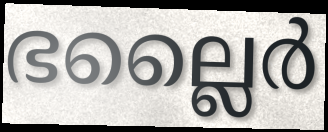
ഭല്ലൈർ